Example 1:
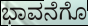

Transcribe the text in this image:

ಭಾವನೆಗೊ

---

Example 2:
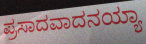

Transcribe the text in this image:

ಪ್ರಸಾದವಾದನಯ್ಯಾ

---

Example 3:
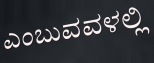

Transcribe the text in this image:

ಎಂಬುವವಳಲ್ಲಿ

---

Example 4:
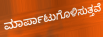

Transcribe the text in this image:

ಮಾರ್ಪಾಟುಗೊಳಿಸುತ್ತವೆ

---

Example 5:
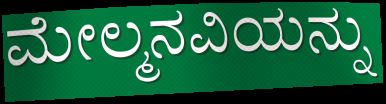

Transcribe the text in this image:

ಮೇಲ್ಮನವಿಯನ್ನು